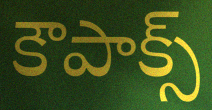
కౌపాక్స్